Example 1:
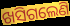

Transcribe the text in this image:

ଖସିଗଲେଣି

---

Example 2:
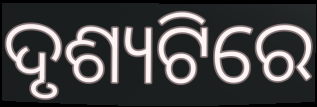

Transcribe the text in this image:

ଦୃଶ୍ୟଟିରେ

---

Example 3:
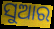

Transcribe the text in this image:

ସୁଆର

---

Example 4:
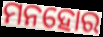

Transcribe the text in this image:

ମନହୋର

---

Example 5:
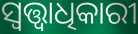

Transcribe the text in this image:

ସ୍ବତ୍ତ୍ବାଧିକାରୀ